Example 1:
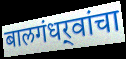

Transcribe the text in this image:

बालगंधर्वांचा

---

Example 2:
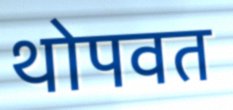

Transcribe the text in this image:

थोपवत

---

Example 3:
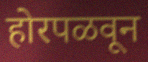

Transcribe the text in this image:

होरपळवून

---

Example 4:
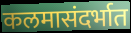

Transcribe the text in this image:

कलमासंदर्भात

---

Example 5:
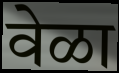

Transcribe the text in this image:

वेळा